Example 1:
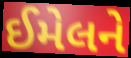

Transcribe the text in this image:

ઈમેલને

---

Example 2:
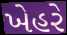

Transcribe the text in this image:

ખેહરે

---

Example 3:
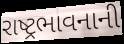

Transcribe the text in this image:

રાષ્ટ્રભાવનાની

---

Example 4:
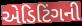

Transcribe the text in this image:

એડિટિંગની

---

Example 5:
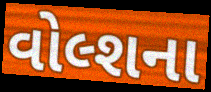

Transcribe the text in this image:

વોલ્શના